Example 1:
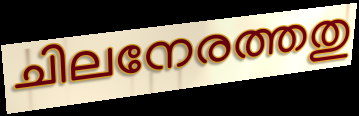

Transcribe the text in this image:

ചിലനേരത്തതു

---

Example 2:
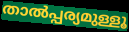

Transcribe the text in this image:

താൽപ്പര്യമുള്ളൂ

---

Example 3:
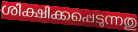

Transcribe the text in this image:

ശിക്ഷിക്കപ്പെടുന്നതു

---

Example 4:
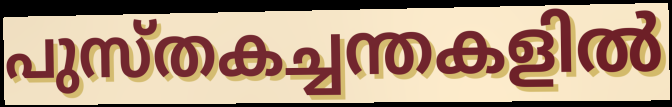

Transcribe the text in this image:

പുസ്തകച്ചന്തകളിൽ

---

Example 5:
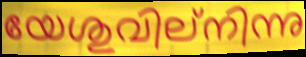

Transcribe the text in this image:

യേശുവില്നിന്നു